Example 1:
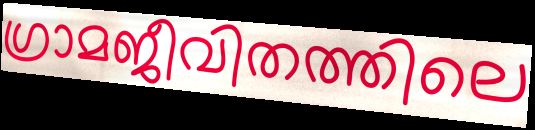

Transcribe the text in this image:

ഗ്രാമജീവിതത്തിലെ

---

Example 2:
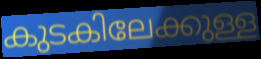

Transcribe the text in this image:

കുടകിലേക്കുള്ള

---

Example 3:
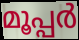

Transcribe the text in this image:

മൂപ്പർ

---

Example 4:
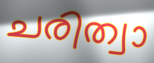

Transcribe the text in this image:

ചരിത്വാ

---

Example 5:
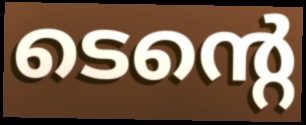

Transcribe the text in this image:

ടെന്റെ